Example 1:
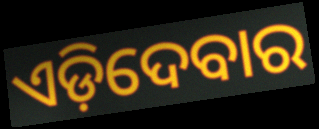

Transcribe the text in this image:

ଏଡ଼ିଦେବାର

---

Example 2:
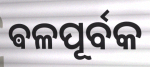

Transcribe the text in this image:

ଵଳପୂର୍ବକ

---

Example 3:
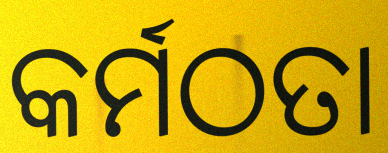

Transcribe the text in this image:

କର୍ମଠତା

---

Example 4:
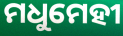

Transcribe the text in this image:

ମଧୁମେହୀ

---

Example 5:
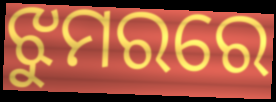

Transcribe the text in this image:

ଝୁମରରେ